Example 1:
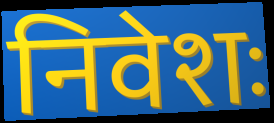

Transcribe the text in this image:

निवेशः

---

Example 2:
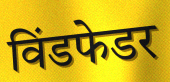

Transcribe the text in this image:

विंडफेडर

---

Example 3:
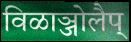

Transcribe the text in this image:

विळाञ्जोलैप्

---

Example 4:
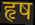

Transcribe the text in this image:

हृष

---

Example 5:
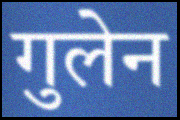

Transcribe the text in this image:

गुलेन